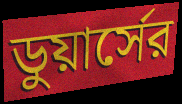
ডুয়ার্সের